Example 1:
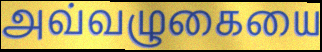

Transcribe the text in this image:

அவ்வழுகையை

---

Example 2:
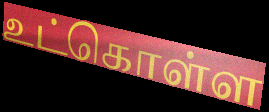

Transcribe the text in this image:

உட்கொள்ள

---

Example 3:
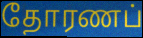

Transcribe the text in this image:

தோரணப்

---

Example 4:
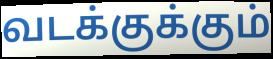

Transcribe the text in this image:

வடக்குக்கும்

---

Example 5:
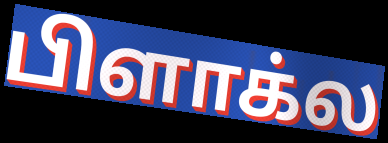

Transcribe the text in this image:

பிளாக்ல